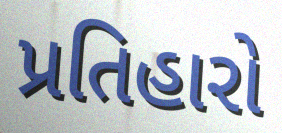
પ્રતિહારો